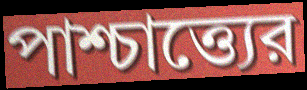
পাশ্চাত্ত্যের